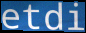
etdi